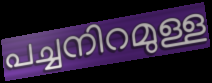
പച്ചനിറമുള്ള